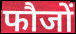
फौजों